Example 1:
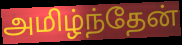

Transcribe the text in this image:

அமிழ்ந்தேன்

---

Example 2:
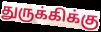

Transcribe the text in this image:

துருக்கிக்கு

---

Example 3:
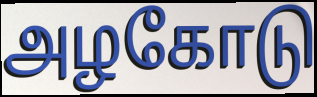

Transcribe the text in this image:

அழகோடு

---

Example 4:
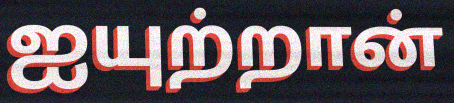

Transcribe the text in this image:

ஐயுற்றான்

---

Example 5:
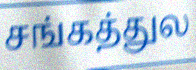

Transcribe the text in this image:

சங்கத்துல